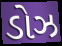
ડોઝ